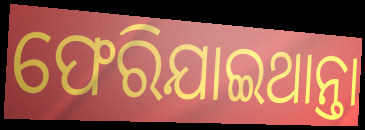
ଫେରିଯାଇଥାନ୍ତା